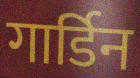
गार्डिन